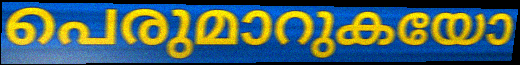
പെരുമാറുകയോ